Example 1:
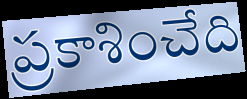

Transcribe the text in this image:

ప్రకాశించేది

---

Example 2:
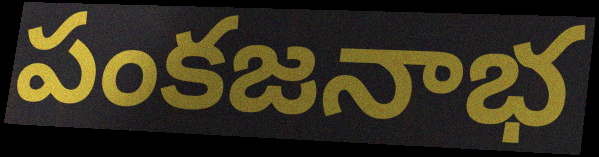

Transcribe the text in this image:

పంకజనాభ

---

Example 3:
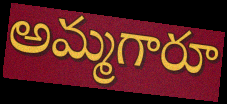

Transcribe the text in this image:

అమ్మగారూ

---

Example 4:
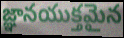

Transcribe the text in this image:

జ్ఞానయుక్తమైన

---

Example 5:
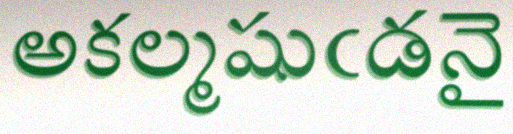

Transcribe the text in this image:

అకల్మషుఁడనై